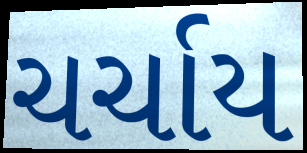
ચર્ચાય